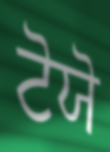
ਟੋਯੋ